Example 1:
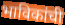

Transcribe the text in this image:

भाविकांची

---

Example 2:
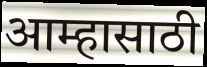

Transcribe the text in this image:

आम्हासाठी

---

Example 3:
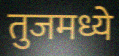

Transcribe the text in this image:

तुजमध्ये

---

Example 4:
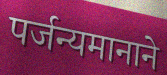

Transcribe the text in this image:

पर्जन्यमानाने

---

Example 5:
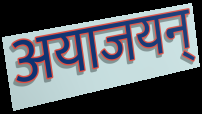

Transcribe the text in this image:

अयाजयन्